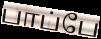
பாப்பே